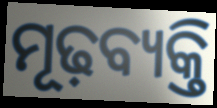
ମୂଢ଼ବ୍ୟକ୍ତି